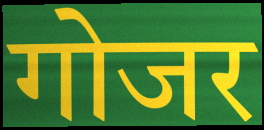
गोजर